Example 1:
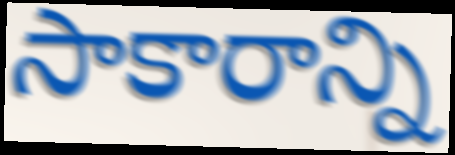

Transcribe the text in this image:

సాకారాన్ని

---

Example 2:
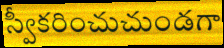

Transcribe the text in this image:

స్వీకరించుచుండగా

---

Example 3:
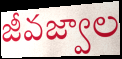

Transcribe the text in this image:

జీవజ్వాల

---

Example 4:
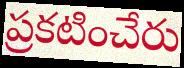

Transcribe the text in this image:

ప్రకటించేరు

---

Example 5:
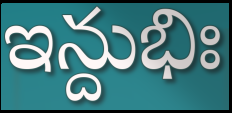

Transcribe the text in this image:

ఇన్దుభిః